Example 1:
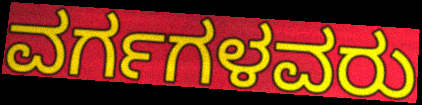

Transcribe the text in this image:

ವರ್ಗಗಳವರು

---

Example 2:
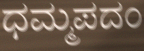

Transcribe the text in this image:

ಧಮ್ಮಪದಂ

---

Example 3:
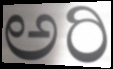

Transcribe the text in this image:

ಅರಿ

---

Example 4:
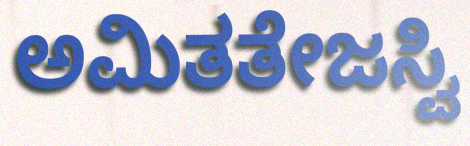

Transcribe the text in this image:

ಅಮಿತತೇಜಸ್ವಿ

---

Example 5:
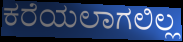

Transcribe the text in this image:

ಕರೆಯಲಾಗಲಿಲ್ಲ